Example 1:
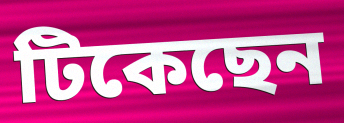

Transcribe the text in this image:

টিকেছেন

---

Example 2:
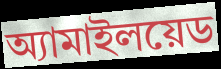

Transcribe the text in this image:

অ্যামাইলয়েড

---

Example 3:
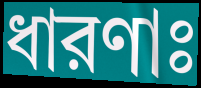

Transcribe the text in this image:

ধারণাঃ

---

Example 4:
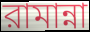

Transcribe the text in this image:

রামান্না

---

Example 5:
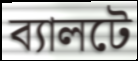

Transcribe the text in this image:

ব্যালটে